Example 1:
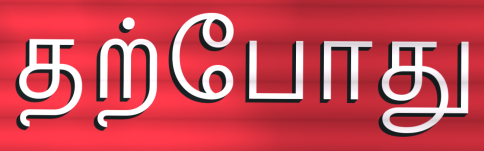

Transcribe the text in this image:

தற்போது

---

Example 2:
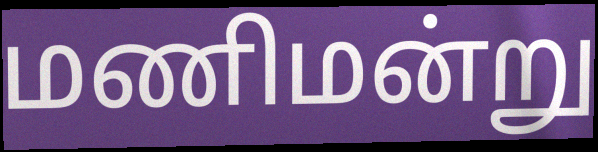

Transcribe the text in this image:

மணிமன்று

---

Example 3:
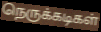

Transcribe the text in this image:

நெருக்கடிகள்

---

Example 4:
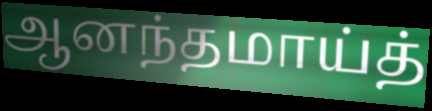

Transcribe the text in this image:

ஆனந்தமாய்த்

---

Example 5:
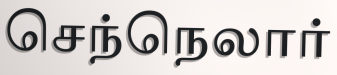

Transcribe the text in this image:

செந்நெலார்